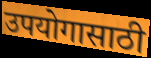
उपयोगासाठी